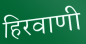
हिरवाणी